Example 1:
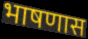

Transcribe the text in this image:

भाषणास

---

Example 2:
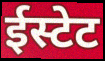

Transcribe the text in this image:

ईस्टेट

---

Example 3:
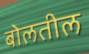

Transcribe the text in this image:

बोलतील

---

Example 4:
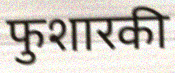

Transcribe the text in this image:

फुशारकी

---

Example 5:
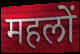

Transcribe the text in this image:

महलों